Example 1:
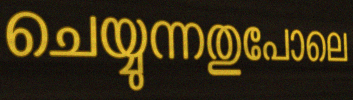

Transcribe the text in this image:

ചെയ്യുന്നതുപോലെ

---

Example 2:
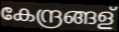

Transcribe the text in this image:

കേന്ദ്രങ്ങള്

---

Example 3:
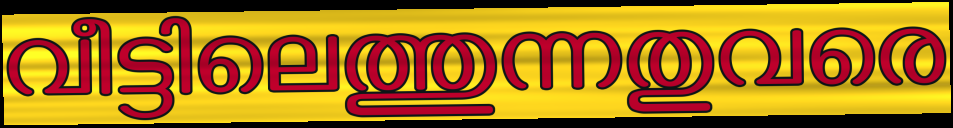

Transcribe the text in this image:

വീട്ടിലെത്തുന്നതുവരെ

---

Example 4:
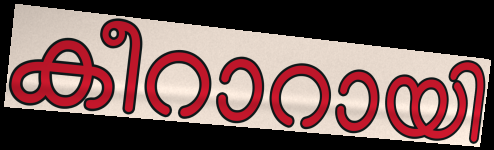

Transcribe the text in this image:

കീറാറായി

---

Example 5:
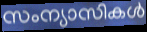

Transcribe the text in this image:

സംന്യാസികൾ